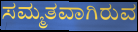
ಸಮ್ಮತವಾಗಿರುವ